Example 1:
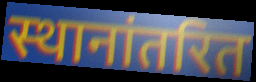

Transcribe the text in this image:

स्थानांतरित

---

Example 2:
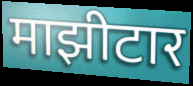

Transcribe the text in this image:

माझीटार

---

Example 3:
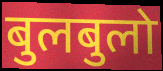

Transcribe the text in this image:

बुलबुलो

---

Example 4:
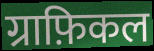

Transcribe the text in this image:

ग्राफ़िकल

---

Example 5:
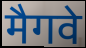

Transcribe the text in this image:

मैगवे